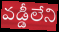
వడ్డీలేని